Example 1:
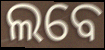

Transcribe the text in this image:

ଲବେ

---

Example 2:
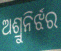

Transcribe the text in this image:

ଅଶ୍ରୁନିର୍ଝର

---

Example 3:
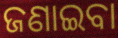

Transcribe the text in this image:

ଜଣାଇବା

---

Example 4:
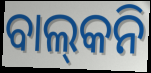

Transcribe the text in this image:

ବାଲ୍‍କନି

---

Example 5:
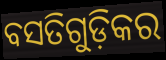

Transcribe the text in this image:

ବସତିଗୁଡ଼ିକର